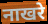
नाखरे